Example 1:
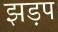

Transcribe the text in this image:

झड़प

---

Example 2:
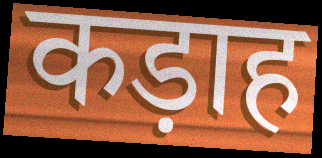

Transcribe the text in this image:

कड़ाह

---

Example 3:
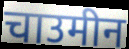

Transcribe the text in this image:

चाउमीन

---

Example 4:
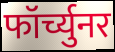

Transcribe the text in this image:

फॉर्च्युनर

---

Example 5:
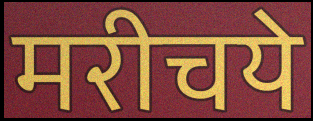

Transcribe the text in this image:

मरीचये